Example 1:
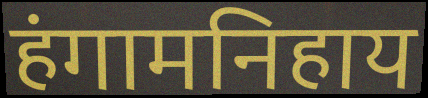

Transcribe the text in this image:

हंगामनिहाय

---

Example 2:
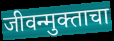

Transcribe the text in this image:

जीवन्मुक्ताचा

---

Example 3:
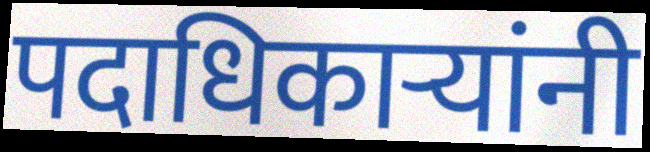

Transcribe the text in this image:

पदाधिकार्‍यांनी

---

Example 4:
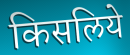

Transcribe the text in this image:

किसलिये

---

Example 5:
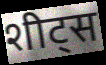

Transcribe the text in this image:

शीट्स